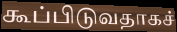
கூப்பிடுவதாகச்